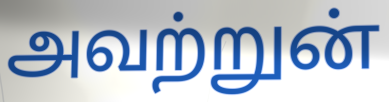
அவற்றுன்